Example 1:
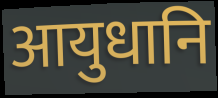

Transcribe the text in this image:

आयुधानि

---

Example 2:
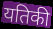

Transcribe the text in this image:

यतिकी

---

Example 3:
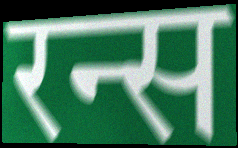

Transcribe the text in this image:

रन्स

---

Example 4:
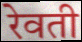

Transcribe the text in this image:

रेवती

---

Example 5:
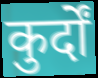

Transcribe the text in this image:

कुर्दों